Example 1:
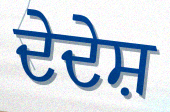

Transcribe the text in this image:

ਦੇਦੇਸ਼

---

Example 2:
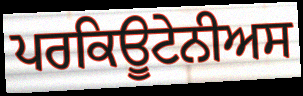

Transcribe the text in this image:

ਪਰਕਿਊਟੇਨੀਅਸ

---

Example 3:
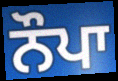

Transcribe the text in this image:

ਨੌਪਾ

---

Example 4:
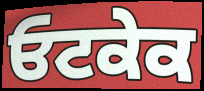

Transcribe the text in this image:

ਓਟਕੇਕ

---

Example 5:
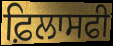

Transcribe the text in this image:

ਫ਼ਿਲਾਸਫੀ